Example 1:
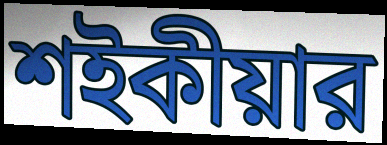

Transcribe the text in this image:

শইকীয়ার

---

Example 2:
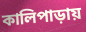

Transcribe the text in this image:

কালিপাড়ায়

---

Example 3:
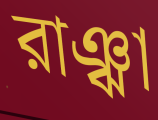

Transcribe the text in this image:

রাঞ্ঝা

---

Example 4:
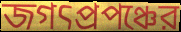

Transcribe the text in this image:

জগৎপ্রপঞ্চের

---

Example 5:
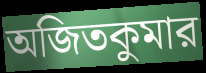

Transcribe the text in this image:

অজিতকুমার